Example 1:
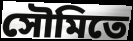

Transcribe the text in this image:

সৌমিতে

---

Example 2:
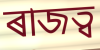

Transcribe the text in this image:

ৰাজত্ব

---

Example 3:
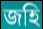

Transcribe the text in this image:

জহি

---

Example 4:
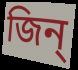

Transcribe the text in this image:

জিন্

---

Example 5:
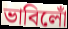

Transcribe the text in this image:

ভাবিলোঁ